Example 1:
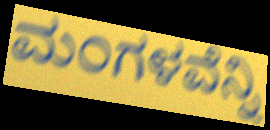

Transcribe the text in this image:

ಮಂಗಳವೆನ್ನಿ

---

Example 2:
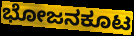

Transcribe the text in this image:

ಭೋಜನಕೂಟ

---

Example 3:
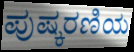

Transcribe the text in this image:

ಪುಷ್ಕರಣಿಯ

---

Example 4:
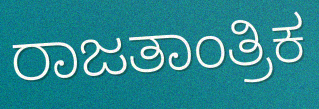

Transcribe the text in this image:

ರಾಜತಾಂತ್ರಿಕ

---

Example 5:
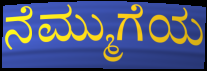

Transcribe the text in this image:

ನೆಮ್ಮುಗೆಯ